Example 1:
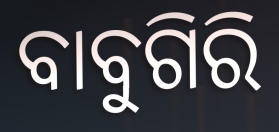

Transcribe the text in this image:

ବାବୁଗିରି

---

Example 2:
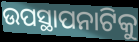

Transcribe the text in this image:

ଉପସ୍ଥାପନାଟିକୁ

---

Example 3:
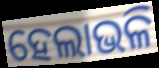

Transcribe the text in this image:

ହେଲାଭଳି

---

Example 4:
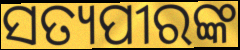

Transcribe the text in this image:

ସତ୍ୟପୀରଙ୍କ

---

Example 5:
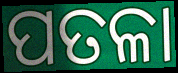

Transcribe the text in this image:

ପତଳା